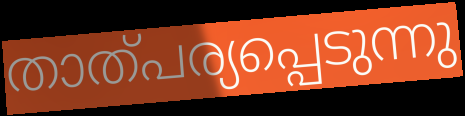
താത്പര്യപ്പെടുന്നു